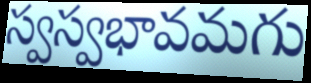
స్వస్వభావమగు